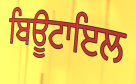
ਬਿਊਟਾਇਲ